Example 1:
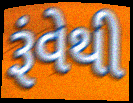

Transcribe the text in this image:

રૂંવેથી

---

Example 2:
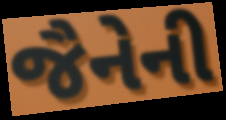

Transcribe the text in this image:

જૈનેની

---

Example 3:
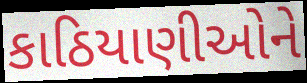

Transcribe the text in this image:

કાઠિયાણીઓને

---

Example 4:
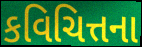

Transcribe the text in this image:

કવિચિત્તના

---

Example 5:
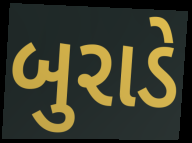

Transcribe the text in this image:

બુરાડે